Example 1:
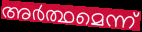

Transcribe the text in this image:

അർത്ഥമെന്ന്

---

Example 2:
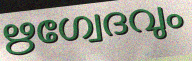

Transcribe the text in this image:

ഋഗ്വേദവും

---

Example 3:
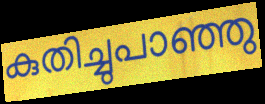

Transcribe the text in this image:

കുതിച്ചുപാഞ്ഞു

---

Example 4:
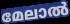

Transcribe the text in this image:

മേലാൽ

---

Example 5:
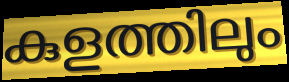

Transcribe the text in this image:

കുളത്തിലും